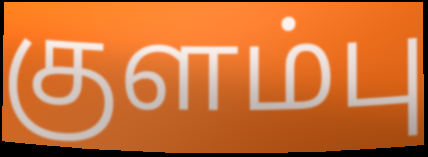
குளம்பு